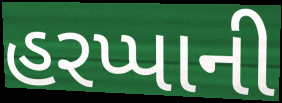
હરપ્પાની